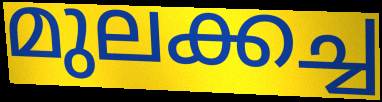
മുലക്കച്ച